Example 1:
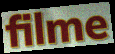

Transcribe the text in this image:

filme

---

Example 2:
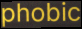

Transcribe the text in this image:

phobic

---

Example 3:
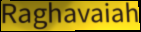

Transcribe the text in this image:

Raghavaiah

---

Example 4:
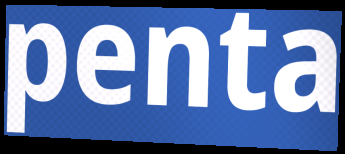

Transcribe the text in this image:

penta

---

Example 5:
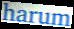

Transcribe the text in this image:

harum